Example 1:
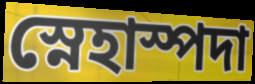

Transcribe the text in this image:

স্নেহাস্পদা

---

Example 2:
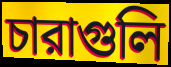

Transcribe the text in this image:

চারাগুলি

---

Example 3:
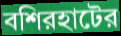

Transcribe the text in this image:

বশিরহাটের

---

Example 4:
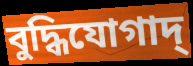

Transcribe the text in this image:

বুদ্ধিযোগাদ্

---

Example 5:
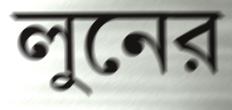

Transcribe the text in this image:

লুনের